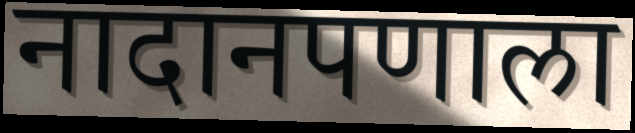
नादानपणाला